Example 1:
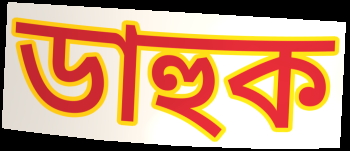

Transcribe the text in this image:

ডাহুক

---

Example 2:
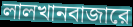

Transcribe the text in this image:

লালখানবাজারে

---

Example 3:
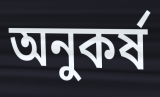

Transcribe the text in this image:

অনুকর্ষ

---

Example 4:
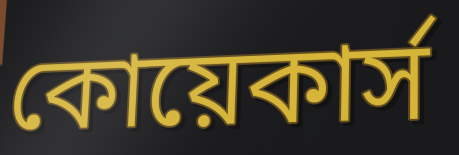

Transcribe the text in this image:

কোয়েকার্স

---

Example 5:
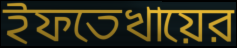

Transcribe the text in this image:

ইফতেখায়ের